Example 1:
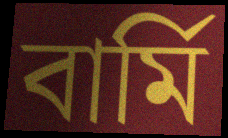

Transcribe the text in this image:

বার্মি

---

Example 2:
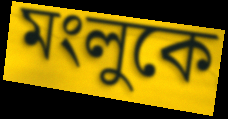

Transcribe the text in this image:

মংলুকে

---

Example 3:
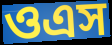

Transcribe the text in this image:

ওএস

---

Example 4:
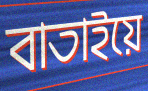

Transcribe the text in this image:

বাতাইয়ে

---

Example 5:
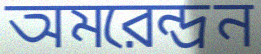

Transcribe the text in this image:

অমরেন্দ্রন